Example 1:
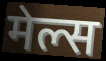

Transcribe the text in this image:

मेल्स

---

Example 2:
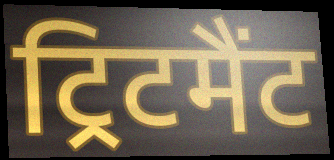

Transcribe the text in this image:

ट्रिटमैंट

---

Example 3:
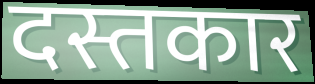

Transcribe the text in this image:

दस्‍तकार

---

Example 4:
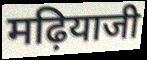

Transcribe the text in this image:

मढ़ियाजी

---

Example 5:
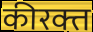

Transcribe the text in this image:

कीरक्त